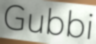
Gubbi